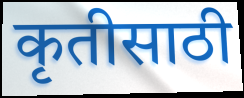
कृतीसाठी